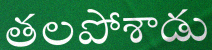
తలపోశాడు